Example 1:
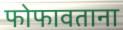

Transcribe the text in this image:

फोफावताना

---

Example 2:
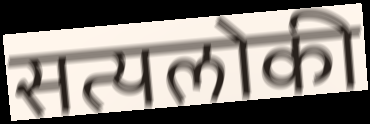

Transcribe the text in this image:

सत्यलोकी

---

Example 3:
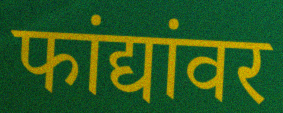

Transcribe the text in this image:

फांद्यांवर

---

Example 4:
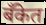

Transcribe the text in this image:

बँकेत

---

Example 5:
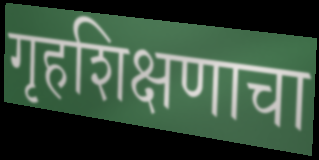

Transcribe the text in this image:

गृहशिक्षणाचा